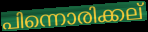
പിന്നൊരിക്കല്